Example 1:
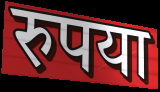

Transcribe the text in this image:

रुपया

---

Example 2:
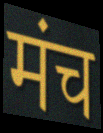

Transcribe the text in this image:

मंच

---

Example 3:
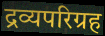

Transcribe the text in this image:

द्रव्यपरिग्रह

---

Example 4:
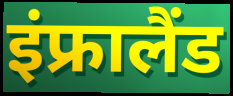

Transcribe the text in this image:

इंफ्रालैंड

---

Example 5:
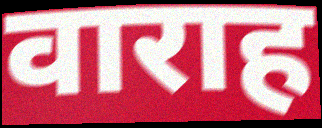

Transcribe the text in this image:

वाराह